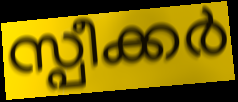
സ്പീക്കർ